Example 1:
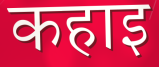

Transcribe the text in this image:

कहाइ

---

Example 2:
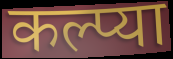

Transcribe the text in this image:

कल्प्या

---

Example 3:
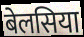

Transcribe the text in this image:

बेलसिया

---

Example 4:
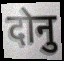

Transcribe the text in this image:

दोनु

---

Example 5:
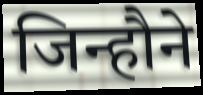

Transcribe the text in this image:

जिन्हौने